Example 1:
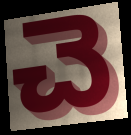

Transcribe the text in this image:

చె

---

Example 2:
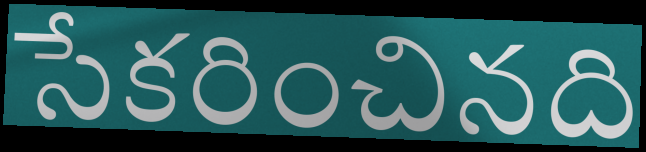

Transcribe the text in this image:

సేకరించినది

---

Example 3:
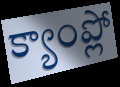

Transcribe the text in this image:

క్యాంప్లో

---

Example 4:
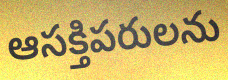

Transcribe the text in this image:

ఆసక్తిపరులను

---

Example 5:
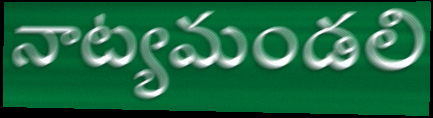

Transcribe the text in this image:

నాట్యమండలి